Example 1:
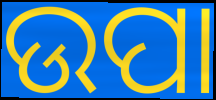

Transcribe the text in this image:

ଉପା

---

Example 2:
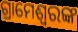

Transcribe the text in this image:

ଗ୍ରାମେଶ୍ୱରଙ୍କ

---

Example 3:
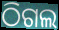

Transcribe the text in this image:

ଠିଗଲ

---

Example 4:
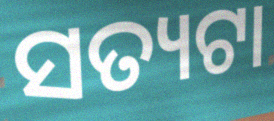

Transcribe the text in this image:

ସତ୍ୟଟା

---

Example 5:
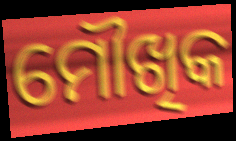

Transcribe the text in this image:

ମୌଖିକ